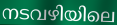
നടവഴിയിലെ